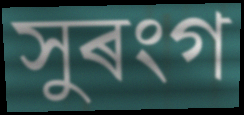
সুৰংগ